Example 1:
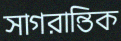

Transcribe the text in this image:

সাগরান্তিক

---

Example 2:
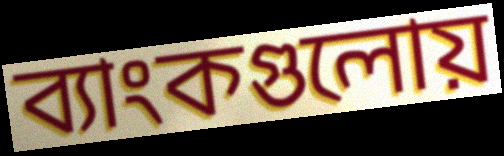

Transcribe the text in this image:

ব্যাংকগুলোয়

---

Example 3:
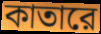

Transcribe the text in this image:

কাতারে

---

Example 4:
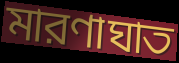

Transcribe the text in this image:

মারণাঘাত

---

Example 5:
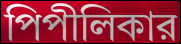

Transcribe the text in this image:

পিপীলিকার